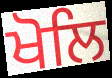
ਖੋਲਿ